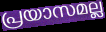
പ്രയാസമല്ല